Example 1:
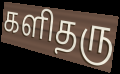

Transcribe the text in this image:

களிதரு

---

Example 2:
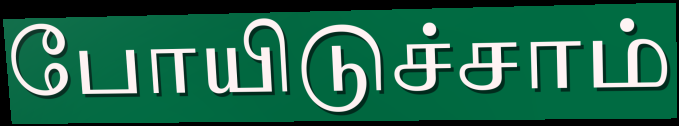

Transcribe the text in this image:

போயிடுச்சாம்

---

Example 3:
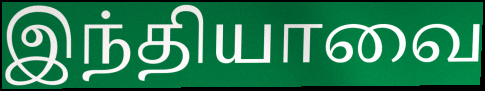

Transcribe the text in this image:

இந்தியாவை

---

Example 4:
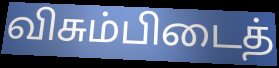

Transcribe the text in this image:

விசும்பிடைத்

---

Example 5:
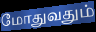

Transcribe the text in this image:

மோதுவதும்